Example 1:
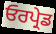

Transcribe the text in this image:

ਓਰਪ੍ਰੇਡ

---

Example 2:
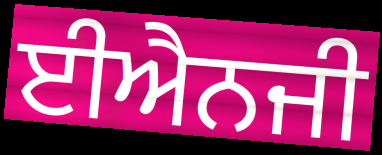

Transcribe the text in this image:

ਈਐਨਜੀ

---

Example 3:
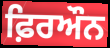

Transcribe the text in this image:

ਫ਼ਿਰਔਨ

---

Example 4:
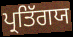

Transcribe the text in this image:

ਪ੍ਰਤਿੱਗਯ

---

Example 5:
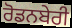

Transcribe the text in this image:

ਰੋਡਨਬੇਰੀ